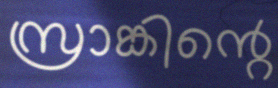
സ്രാങ്കിന്റെ